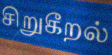
சிறுகீறல்